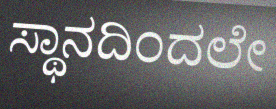
ಸ್ಥಾನದಿಂದಲೇ